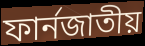
ফার্নজাতীয়